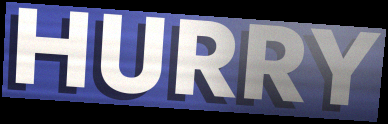
HURRY